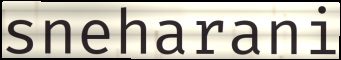
sneharani